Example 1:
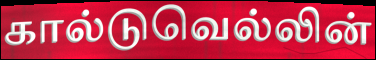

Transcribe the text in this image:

கால்டுவெல்லின்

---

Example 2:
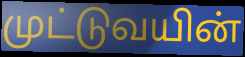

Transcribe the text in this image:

முட்டுவயின்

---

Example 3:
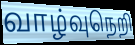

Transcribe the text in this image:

வாழ்வுநெறி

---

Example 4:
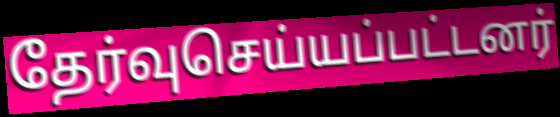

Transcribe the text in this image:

தேர்வுசெய்யப்பட்டனர்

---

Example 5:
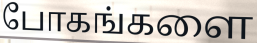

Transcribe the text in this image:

போகங்களை